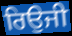
ਰਿਉਜੀ